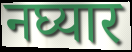
नघ्यार